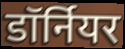
डॉर्नियर